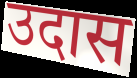
उदास